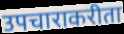
उपचाराकरीता